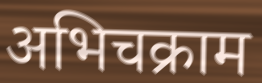
अभिचक्राम